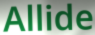
Allide